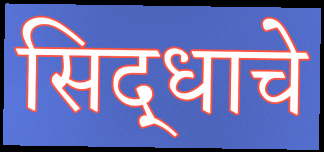
सिद्धाचे